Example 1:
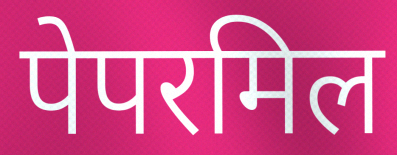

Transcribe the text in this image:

पेपरमिल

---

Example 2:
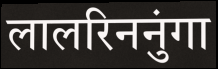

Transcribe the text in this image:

लालरिननुंगा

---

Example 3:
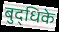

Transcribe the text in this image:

बुद्धिके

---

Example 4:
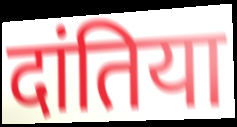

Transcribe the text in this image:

दांतिया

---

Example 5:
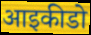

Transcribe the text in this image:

आइकीडो